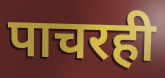
पाचरही